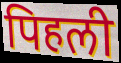
पिहली